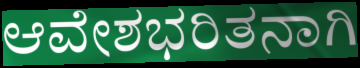
ಆವೇಶಭರಿತನಾಗಿ